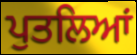
ਪੁਤਲਿਆਂ